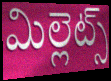
మిల్లెట్స్